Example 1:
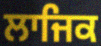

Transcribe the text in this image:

ਲਾਜਿਕ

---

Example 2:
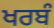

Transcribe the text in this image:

ਖਰਬੰ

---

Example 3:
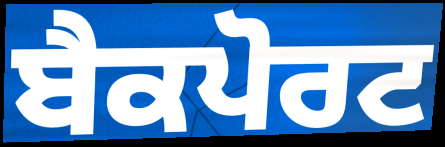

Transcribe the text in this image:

ਬੈਕਪੋਰਟ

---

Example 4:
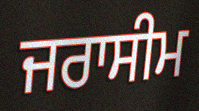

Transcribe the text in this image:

ਜਰਾਸੀਮ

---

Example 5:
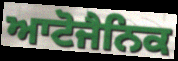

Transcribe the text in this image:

ਆਟੋਜੈਨਿਕ